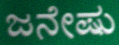
ಜನೇಷು